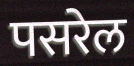
पसरेल